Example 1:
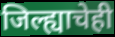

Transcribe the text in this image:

जिल्ह्याचेही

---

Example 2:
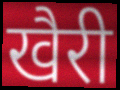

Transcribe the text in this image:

खैरी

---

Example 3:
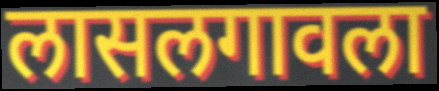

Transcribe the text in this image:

लासलगावला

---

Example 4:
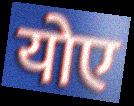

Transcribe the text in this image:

योए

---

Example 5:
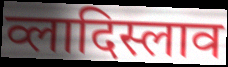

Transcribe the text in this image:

व्लादिस्लाव